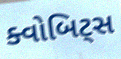
ક્વોબિટ્સ